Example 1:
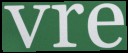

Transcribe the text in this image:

vre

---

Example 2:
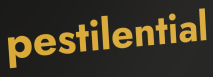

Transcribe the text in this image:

pestilential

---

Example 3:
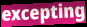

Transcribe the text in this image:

excepting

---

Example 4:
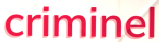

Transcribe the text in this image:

criminel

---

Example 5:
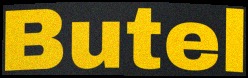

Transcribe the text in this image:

Butel